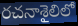
రచనాశైలిలో